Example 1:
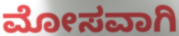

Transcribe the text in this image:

ಮೋಸವಾಗಿ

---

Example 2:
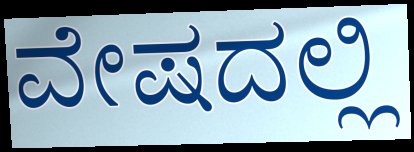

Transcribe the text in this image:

ವೇಷದಲ್ಲಿ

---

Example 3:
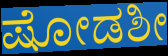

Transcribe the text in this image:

ಷೋಡಶೀ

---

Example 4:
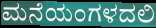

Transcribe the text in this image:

ಮನೆಯಂಗಳದಲಿ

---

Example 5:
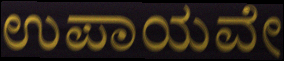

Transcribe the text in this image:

ಉಪಾಯವೇ